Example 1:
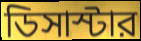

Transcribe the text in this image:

ডিসাস্টার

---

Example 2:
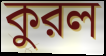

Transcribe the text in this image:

কুরল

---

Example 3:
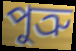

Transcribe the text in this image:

পুত্রু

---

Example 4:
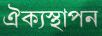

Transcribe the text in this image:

ঐক্যস্থাপন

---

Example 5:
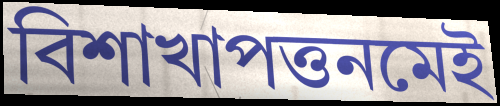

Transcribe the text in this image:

বিশাখাপত্তনমেই